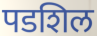
पडशिल